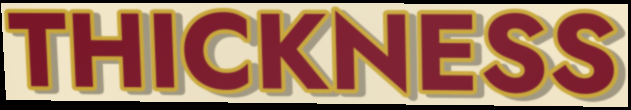
THICKNESS